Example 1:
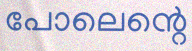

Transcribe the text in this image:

പോലെന്റെ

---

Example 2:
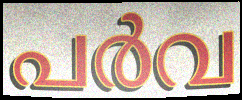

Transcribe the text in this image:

പർവ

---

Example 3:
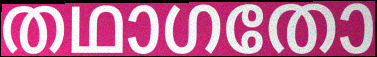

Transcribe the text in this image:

തഥാഗതോ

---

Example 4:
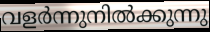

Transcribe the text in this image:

വളർന്നുനിൽക്കുന്നു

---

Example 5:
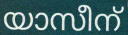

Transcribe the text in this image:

യാസീന്